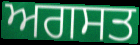
ਅਗਸਤ